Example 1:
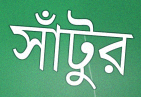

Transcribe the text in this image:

সাঁটুর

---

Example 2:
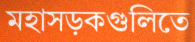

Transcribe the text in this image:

মহাসড়কগুলিতে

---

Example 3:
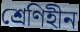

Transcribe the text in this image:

শ্রেণিহীন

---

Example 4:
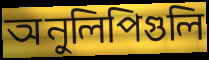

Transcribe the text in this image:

অনুলিপিগুলি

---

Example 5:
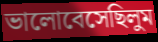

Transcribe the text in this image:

ভালোবেসেছিলুম